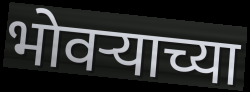
भोवऱ्याच्या